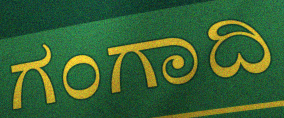
ಗಂಗಾದಿ